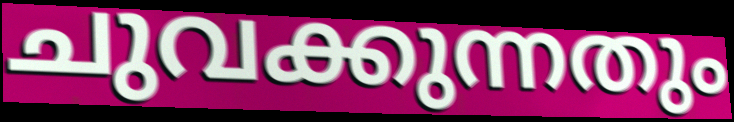
ചുവക്കുന്നതും